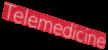
Telemedicine